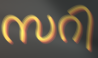
സറി